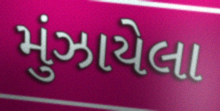
મુંઝાયેલા